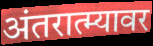
अंतरात्म्यावर